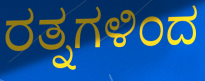
ರತ್ನಗಳಿಂದ